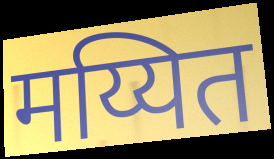
मय्यित